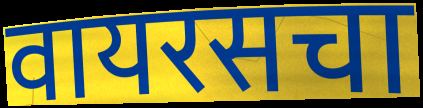
वायरसचा